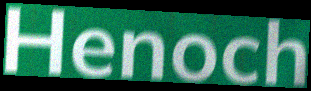
Henoch